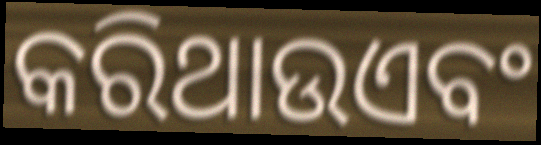
କରିଥାଉଏବଂ